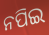
ନପିଇ